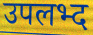
उपलभ्द